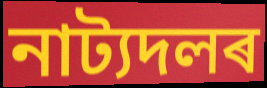
নাট্যদলৰ